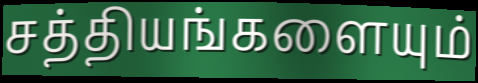
சத்தியங்களையும்